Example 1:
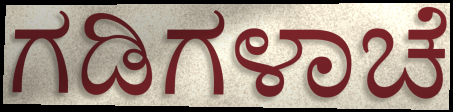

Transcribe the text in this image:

ಗಡಿಗಳಾಚೆ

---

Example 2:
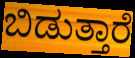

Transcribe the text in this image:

ಬಿಡುತ್ತಾರೆ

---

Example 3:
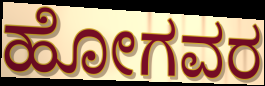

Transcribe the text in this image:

ಹೋಗವರ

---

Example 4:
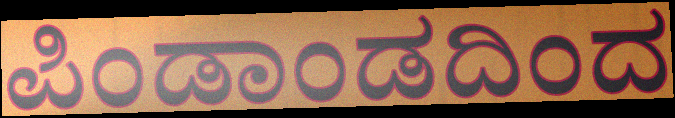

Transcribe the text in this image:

ಪಿಂಡಾಂಡದಿಂದ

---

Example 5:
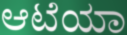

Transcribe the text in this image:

ಆಟೆಯಾ